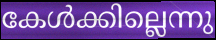
കേൾക്കില്ലെന്നു